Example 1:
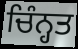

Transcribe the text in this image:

ਚਿੰਨ੍ਹਤ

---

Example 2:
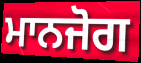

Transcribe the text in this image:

ਮਾਨਜੋਗ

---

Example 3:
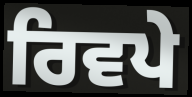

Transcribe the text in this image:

ਰਿਵਪੇ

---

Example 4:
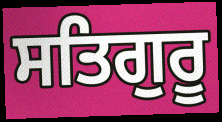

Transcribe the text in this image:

ਸਤਿਗੁਰੂ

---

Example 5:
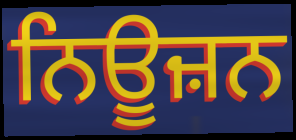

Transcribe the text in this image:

ਨਿਊਜ਼ਨ